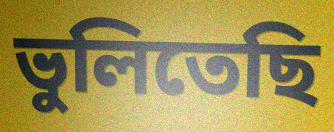
ভুলিতেছি